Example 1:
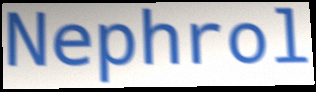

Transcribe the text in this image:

Nephrol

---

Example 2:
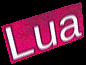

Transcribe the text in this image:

Lua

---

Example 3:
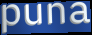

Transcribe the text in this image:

puna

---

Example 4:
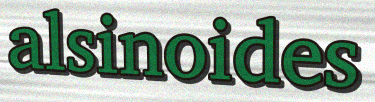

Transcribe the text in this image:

alsinoides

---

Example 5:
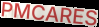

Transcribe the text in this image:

PMCARES